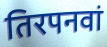
तिरपनवां